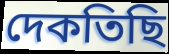
দেকতিছি